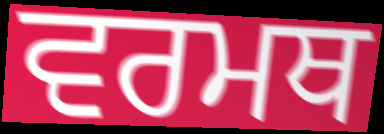
ਵਰਮਥ